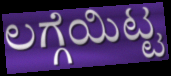
ಲಗ್ಗೆಯಿಟ್ಟ